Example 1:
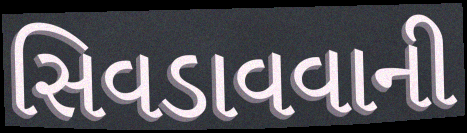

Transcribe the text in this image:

સિવડાવવાની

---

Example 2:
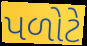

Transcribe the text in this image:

પળોટે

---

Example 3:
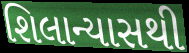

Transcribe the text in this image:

શિલાન્યાસથી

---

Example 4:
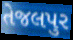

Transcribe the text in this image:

તેજલપુર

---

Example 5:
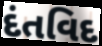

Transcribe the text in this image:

દંતવિદ